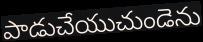
పాడుచేయుచుండెను